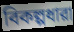
বিকল্পধারা